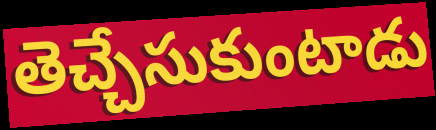
తెచ్చేసుకుంటాడు